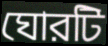
ঘোরটি